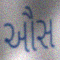
ઔસ